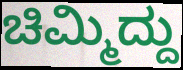
ಚಿಮ್ಮಿದ್ದು